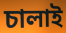
চালাই